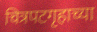
चित्रपटगृहाच्या